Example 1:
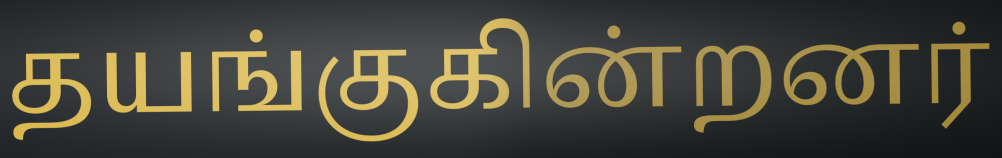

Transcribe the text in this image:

தயங்குகின்றனர்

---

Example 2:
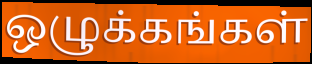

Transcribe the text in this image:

ஒழுக்கங்கள்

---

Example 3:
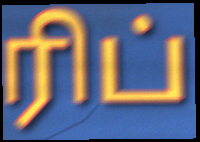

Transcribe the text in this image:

ரிப்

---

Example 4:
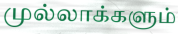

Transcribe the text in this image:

முல்லாக்களும்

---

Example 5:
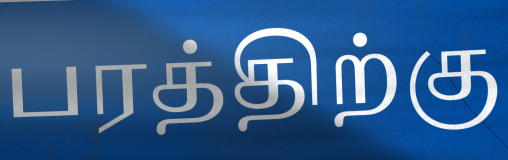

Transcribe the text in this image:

பரத்திற்கு